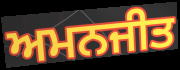
ਅਮਨਜੀਤ